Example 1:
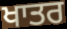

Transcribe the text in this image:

ਖਾਤਰ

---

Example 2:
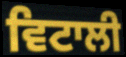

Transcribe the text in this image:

ਵਿਟਾਲੀ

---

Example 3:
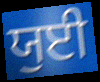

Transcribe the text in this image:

ਯੁਈ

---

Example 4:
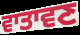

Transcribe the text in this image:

ਵਾਤਾਵਣ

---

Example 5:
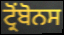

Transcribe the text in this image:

ਟ੍ਰੋਂਬੋਨਸ